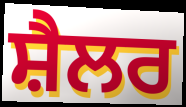
ਸ਼ੈਲਰ